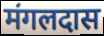
मंगलदास